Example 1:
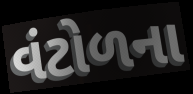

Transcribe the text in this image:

વંટોળના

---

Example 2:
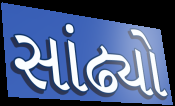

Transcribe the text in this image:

સાંઢ્યો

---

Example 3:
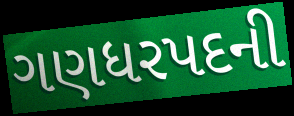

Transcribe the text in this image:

ગણધરપદની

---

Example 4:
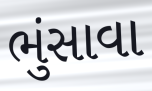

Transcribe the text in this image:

ભુંસાવા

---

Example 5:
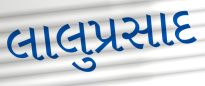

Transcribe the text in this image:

લાલુપ્રસાદ